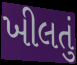
ખીલતું